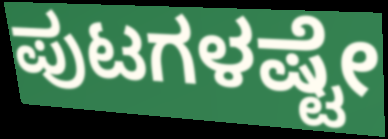
ಪುಟಗಳಷ್ಟೇ